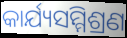
କାର୍ଯ୍ୟସମ୍ମିଶ୍ରଣ